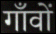
गाँवों